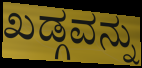
ಖಡ್ಗವನ್ನು